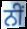
ਨੀਂ